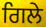
ਗਿਲੇ